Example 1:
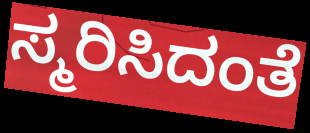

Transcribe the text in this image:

ಸ್ಮರಿಸಿದಂತೆ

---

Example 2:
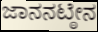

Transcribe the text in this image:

ಜಾನನಟ್ಠೇನ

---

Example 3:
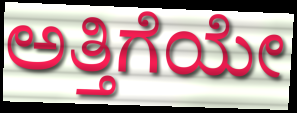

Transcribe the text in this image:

ಅತ್ತಿಗೆಯೇ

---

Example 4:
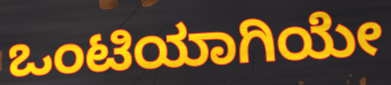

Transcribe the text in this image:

ಒಂಟಿಯಾಗಿಯೇ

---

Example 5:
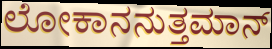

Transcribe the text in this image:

ಲೋಕಾನನುತ್ತಮಾನ್